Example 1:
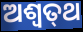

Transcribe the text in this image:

ଅଶ୍ଵତ୍‌ଥ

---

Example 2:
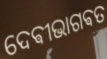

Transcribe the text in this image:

ଦେଵୀଭାଗଵତ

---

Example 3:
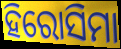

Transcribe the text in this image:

ହିରୋସିମା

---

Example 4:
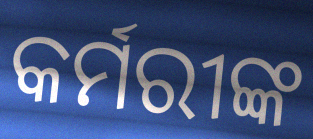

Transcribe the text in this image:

କର୍ମରୀଙ୍କ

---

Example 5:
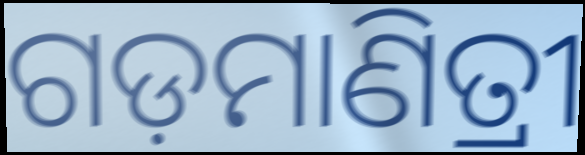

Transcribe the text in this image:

ଗଡ଼ମାଣିତ୍ରୀ